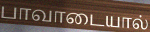
பாவாடையால்